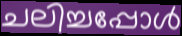
ചലിച്ചപ്പോൾ